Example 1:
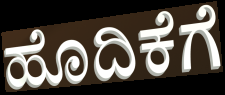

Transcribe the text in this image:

ಹೊದಿಕೆಗೆ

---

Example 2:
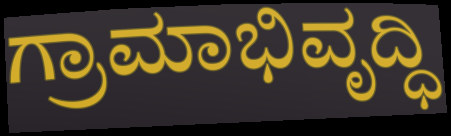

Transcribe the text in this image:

ಗ್ರಾಮಾಭಿವೃದ್ಧಿ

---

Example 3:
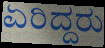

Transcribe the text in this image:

ಏರಿದ್ದರು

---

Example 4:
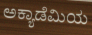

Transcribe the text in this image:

ಅಕ್ಯಾಡೆಮಿಯ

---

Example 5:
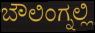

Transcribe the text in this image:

ಬೌಲಿಂಗ್ನಲ್ಲಿ